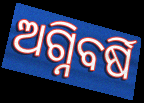
ଅଗ୍ନିବର୍ଷି